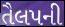
તૈલપની